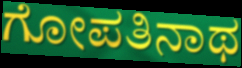
ಗೋಪತಿನಾಥ